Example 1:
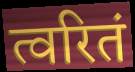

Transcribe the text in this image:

त्वरितं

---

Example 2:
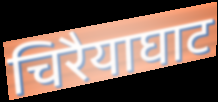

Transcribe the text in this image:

चिरैयाघाट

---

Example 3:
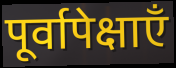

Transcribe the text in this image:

पूर्वापेक्षाएँ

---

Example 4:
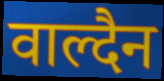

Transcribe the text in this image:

वाल्दैन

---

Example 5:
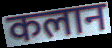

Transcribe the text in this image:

कलान